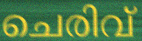
ചെരിവ്